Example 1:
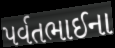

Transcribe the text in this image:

પર્વતભાઈના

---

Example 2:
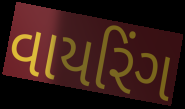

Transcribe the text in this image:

વાયરિંગ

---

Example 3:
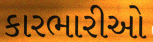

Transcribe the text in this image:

કારભારીઓ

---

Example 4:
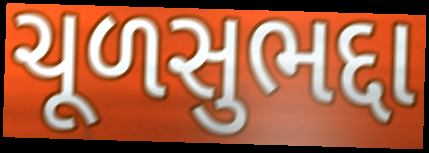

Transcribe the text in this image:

ચૂળસુભદ્દા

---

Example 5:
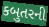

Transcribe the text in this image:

કબુતરની